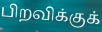
பிறவிக்குக்